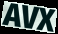
AVX